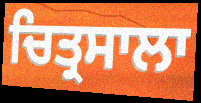
ਚਿਤ੍ਰਸਾਲਾ